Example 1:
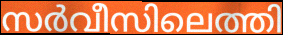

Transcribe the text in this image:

സർവീസിലെത്തി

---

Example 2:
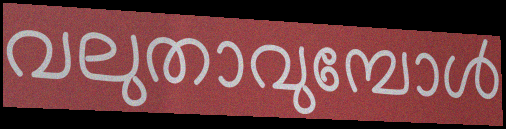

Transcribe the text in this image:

വലുതാവുമ്പോൾ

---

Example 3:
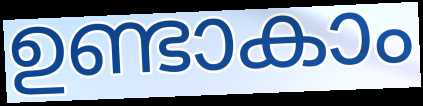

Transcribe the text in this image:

ഉണ്ടാകാം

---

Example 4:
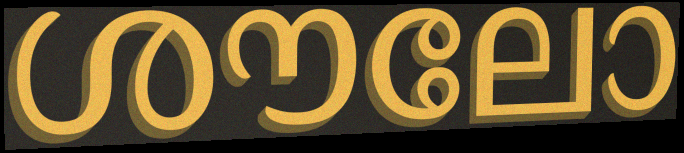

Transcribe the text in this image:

ശൗലോ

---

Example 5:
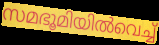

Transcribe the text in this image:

സമഭൂമിയിൽവെച്ച്